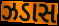
ઝડાસ